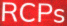
RCPs